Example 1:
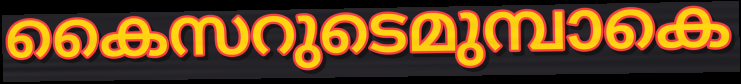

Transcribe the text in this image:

കൈസറുടെമുമ്പാകെ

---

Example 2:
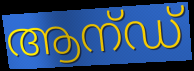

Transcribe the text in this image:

ആന്ഡ്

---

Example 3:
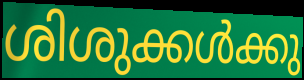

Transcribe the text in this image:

ശിശുക്കൾക്കു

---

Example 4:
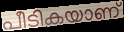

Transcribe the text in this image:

പീടികയാണ്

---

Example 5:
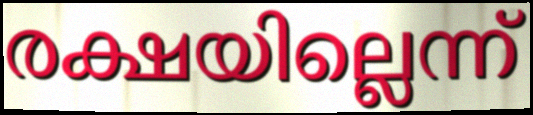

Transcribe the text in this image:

രക്ഷയില്ലെന്ന്